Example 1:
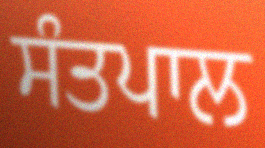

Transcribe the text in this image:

ਸੰਤਪਾਲ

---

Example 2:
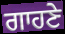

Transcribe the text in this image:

ਗਾਹਣੇ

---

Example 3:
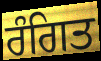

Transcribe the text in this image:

ਰੰਗਿਤ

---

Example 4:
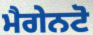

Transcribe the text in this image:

ਮੈਗੇਨਟੋ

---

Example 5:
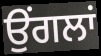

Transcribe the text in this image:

ਉੰਗਲਾਂ